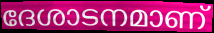
ദേശാടനമാണ്